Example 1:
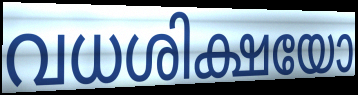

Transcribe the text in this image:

വധശിക്ഷയോ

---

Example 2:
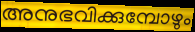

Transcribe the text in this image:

അനുഭവിക്കുമ്പോഴും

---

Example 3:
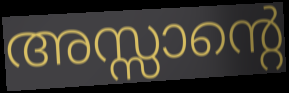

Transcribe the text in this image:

അസ്സാന്റെ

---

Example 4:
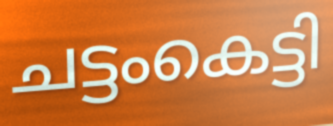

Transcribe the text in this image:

ചട്ടംകെട്ടി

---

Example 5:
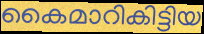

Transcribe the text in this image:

കൈമാറികിട്ടിയ